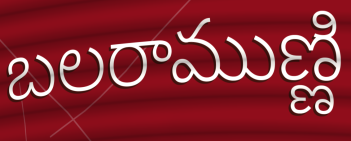
బలరాముణ్ణి